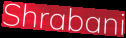
Shrabani